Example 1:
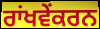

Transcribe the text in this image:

ਰਾਂਖਵੇਂਕਰਨ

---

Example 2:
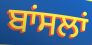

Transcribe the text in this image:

ਬਾਂਸਲਾਂ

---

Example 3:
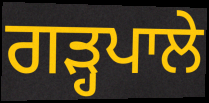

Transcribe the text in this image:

ਗੜ੍ਹਪਾਲੇ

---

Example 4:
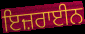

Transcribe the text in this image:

ਇਜ਼ਰਾਈਨ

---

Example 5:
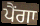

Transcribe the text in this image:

ਪੈਂਗਾ